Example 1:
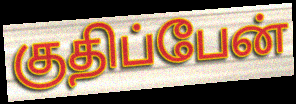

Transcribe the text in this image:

குதிப்பேன்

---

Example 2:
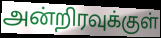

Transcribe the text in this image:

அன்றிரவுக்குள்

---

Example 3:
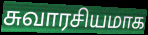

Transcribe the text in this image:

சுவாரசியமாக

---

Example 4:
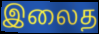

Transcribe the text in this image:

இலைத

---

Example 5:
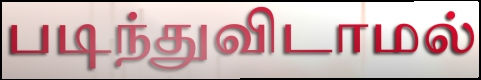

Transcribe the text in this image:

படிந்துவிடாமல்